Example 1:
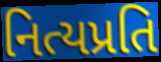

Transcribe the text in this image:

નિત્યપ્રતિ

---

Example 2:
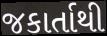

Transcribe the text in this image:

જકાર્તાથી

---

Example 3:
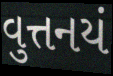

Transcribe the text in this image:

વુત્તનયં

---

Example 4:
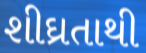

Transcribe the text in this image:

શીઘ્રતાથી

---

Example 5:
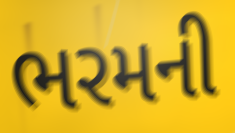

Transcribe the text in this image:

ભરમની